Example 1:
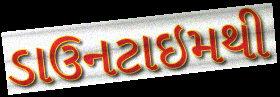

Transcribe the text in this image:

ડાઉનટાઇમથી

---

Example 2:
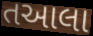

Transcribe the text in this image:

તઆલા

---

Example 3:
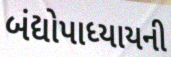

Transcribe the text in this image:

બંદ્યોપાધ્યાયની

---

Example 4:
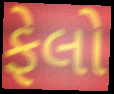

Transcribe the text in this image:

ફેલો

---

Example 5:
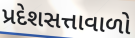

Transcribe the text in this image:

પ્રદેશસત્તાવાળો